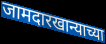
जामदारखान्याच्या